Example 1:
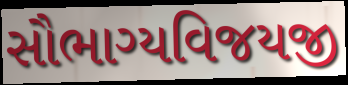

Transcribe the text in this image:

સૌભાગ્યવિજયજી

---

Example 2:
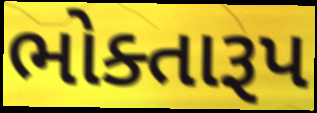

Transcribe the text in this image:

ભોક્તારૂપ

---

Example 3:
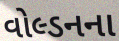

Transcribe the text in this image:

વોલ્ડનના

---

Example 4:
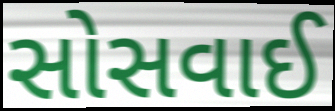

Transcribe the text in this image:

સોસવાઈ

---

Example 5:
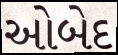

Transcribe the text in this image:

ઓબેદ